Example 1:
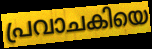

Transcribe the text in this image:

പ്രവാചകിയെ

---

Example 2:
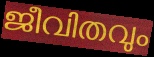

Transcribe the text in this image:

ജീവിതവും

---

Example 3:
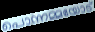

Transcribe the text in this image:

പൊന്നമ്മയോട്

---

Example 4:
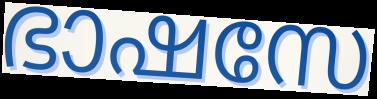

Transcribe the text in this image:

ഭാഷസേ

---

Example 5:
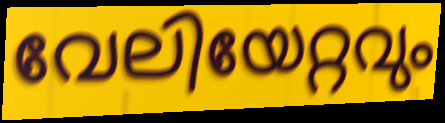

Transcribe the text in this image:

വേലിയേറ്റവും